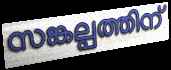
സങ്കല്പത്തിന്